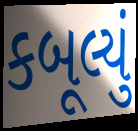
કબૂલ્યું